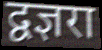
द्वज्ञरा